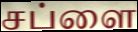
சப்ளை